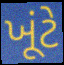
ખૂંટે